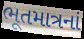
ભૂતમાત્રનાં